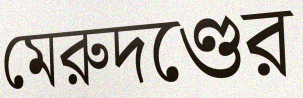
মেরুদণ্ডের